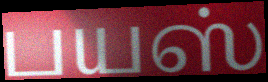
பயஸ்